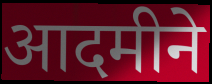
आदमीने